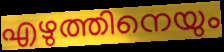
എഴുത്തിനെയും